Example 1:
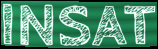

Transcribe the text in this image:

INSAT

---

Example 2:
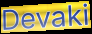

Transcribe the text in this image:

Devaki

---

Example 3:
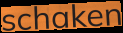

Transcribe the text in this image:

schaken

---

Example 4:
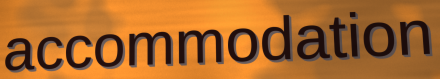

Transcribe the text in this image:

accommodation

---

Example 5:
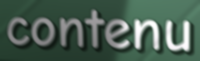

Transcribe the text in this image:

contenu